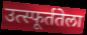
उत्स्फूर्ततेला